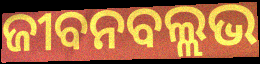
ଜୀବନବଲ୍ଲଭ